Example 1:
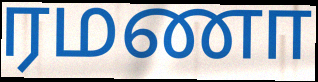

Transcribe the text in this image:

ரமணா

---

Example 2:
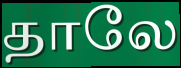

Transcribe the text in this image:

தாலே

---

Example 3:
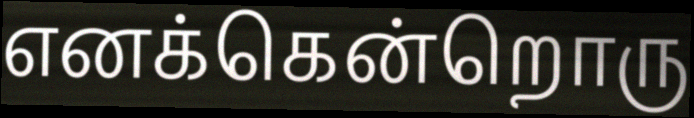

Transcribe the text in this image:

எனக்கென்றொரு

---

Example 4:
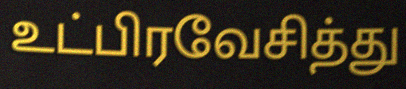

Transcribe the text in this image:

உட்பிரவேசித்து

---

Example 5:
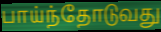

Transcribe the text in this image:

பாய்ந்தோடுவது